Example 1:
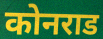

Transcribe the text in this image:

कोनराड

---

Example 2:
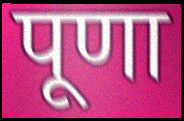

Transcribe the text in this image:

पूणा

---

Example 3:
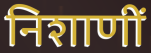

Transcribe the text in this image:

निशाणीं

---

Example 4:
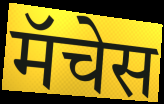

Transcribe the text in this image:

मॅचेस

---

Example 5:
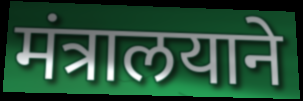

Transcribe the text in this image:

मंत्रालयाने